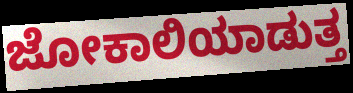
ಜೋಕಾಲಿಯಾಡುತ್ತ